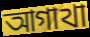
আগাথা